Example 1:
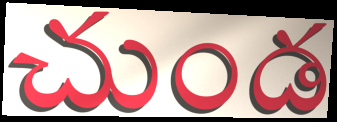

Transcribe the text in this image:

చుండ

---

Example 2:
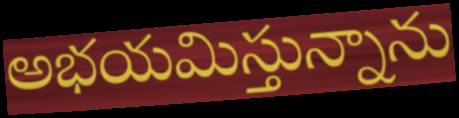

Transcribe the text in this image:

అభయమిస్తున్నాను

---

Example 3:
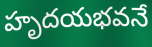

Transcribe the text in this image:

హృదయభవనే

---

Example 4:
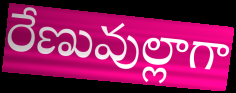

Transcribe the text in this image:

రేణువుల్లాగా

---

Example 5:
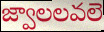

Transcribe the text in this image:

జ్వాలలవలె